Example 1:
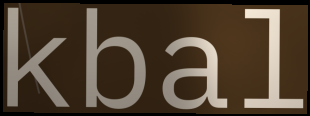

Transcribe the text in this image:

kbal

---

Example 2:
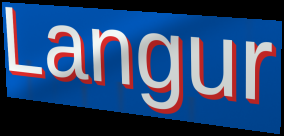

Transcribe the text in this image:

Langur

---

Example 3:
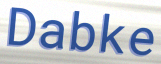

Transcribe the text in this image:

Dabke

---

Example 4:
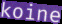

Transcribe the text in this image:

koine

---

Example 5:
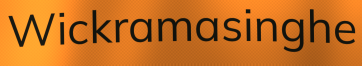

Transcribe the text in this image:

Wickramasinghe